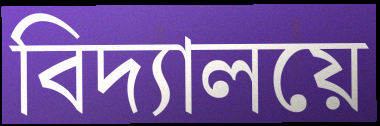
বিদ্যালয়ে